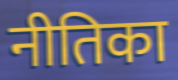
नीतिका